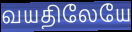
வயதிலேயே